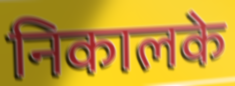
निकालके